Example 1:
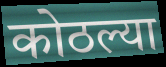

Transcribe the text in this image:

कोठल्या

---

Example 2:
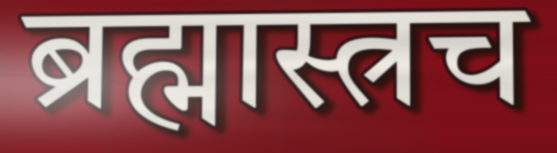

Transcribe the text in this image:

ब्रह्मास्त्रच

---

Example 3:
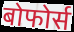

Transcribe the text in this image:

बोफोर्स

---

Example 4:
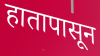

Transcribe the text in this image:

हातापासून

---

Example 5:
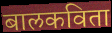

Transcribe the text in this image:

बालकविता